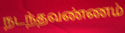
நடந்தவண்ணம்